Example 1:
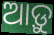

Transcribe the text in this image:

ଆଡ଼ୁ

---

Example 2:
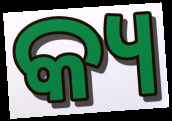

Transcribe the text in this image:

କ୍ୟ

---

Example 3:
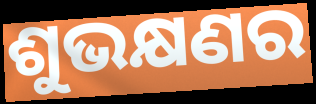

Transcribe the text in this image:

ଶୁଭକ୍ଷଣର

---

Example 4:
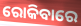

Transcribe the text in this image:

ରୋକିବାରେ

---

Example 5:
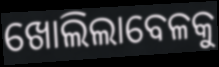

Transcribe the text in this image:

ଖୋଲିଲାବେଳକୁ